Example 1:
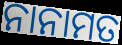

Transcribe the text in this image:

ନାନାମତ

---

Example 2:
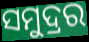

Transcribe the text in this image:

ସମୁଦ୍ରର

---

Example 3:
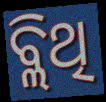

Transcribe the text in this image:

ବ୍ଲିଥି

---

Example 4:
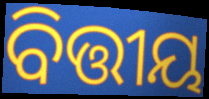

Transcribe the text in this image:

ବିତ୍ତୀୟ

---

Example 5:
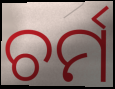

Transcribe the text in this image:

ଚର୍ମ